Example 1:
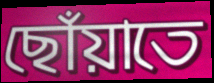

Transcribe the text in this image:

ছোঁয়াতে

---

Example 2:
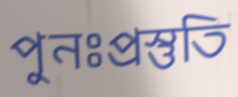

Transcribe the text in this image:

পুনঃপ্রস্তুতি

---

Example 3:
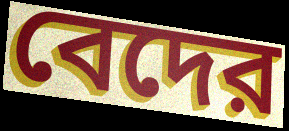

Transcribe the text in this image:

বেদের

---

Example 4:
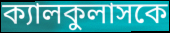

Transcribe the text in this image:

ক্যালকুলাসকে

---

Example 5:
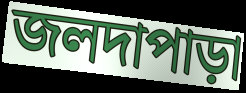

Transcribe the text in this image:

জলদাপাড়া